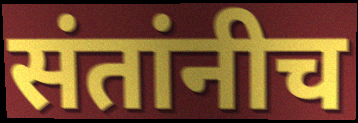
संतांनीच